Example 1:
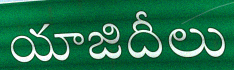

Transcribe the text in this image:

యాజిదీలు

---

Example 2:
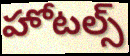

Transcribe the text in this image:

హోటల్స్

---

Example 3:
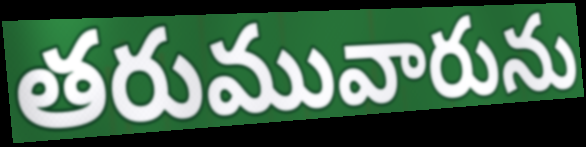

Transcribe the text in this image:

తరుమువారును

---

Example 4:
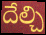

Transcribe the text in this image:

దేల్చి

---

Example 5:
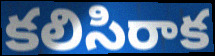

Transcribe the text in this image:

కలిసిరాక